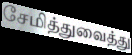
சேமித்துவைத்து